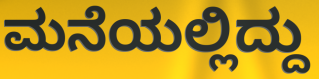
ಮನೆಯಲ್ಲಿದ್ದು